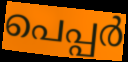
പെപ്പർ